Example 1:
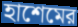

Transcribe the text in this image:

হাশেমের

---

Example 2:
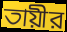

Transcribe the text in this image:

তায়ীর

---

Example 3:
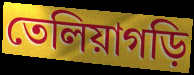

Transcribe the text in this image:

তেলিয়াগড়ি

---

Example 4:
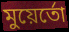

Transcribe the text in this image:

মুয়ের্তো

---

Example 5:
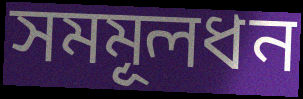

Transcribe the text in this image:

সমমূলধন